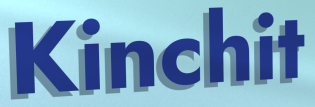
Kinchit